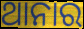
ଥାନାର